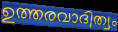
ഉത്തരവാദിത്വം